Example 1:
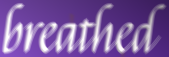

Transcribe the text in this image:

breathed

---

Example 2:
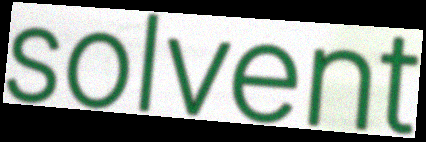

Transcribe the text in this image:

solvent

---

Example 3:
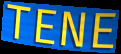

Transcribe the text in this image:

TENE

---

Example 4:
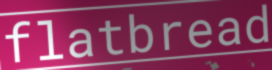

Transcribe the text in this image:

flatbread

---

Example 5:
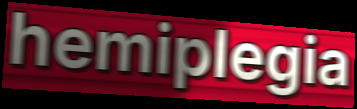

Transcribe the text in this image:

hemiplegia